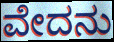
ವೇದನು